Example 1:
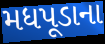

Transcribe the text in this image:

મધપૂડાના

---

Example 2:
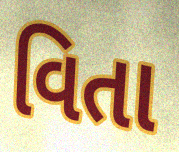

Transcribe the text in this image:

વિતા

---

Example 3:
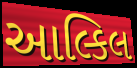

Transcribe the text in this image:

આલ્કિલ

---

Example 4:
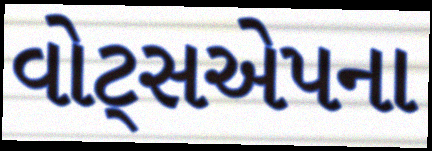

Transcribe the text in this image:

વોટ્સએપના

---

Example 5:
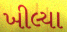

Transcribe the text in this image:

ખીલ્યા